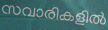
സവാരികളിൽ